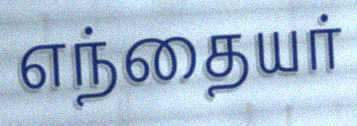
எந்தையர்